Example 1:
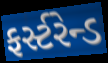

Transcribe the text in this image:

ફર્સ્ટરેન્ડ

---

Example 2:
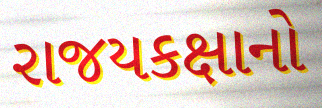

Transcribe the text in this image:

રાજયકક્ષાનો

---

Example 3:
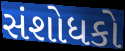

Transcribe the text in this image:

સંશોધકો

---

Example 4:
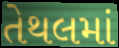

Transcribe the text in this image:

તેથલમાં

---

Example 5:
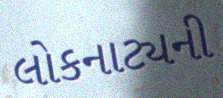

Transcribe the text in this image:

લોકનાટ્યની